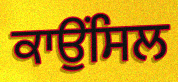
ਕਾਉਂਸਿਲ